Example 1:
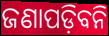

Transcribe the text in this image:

ଜଣାପଡ଼ିବନି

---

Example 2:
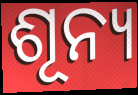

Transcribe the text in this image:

ଶୂନ୍ୟ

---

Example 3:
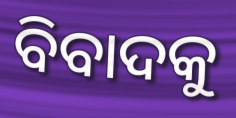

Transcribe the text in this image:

ବିବାଦକୁ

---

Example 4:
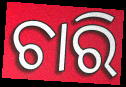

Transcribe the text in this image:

ଚାରି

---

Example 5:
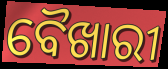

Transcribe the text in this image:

ବୈଖାରୀ